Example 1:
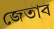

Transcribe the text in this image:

জেতাব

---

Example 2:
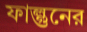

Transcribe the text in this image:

ফাল্গুনের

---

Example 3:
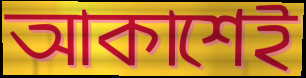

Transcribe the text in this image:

আকাশেই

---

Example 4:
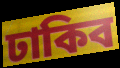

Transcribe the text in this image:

ঢাকিব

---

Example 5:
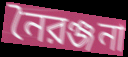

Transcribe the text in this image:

নৈরঞ্জনা